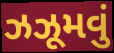
ઝઝૂમવું